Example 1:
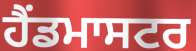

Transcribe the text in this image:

ਹੈਂਡਮਾਸਟਰ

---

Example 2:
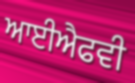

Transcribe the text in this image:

ਆਈਐਫਵੀ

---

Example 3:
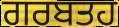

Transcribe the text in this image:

ਗਰਬਤਹ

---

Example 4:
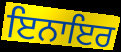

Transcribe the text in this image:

ਇਨਾਇਰ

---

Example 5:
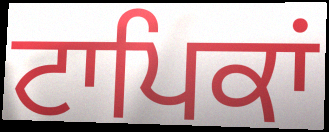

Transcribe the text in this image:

ਟਾਪਿਕਾਂ